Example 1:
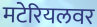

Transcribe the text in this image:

मटेरियलवर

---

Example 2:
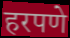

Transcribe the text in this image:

हरपणे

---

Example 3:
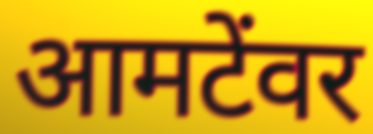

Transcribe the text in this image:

आमटेंवर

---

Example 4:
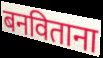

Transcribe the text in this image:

बनविताना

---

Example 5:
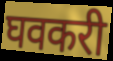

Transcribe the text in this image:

घवकरी